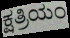
ಕ್ಷತ್ರಿಯಂ